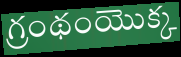
గ్రంథంయొక్క